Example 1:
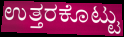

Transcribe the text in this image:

ಉತ್ತರಕೊಟ್ಟು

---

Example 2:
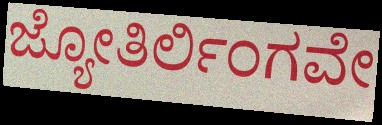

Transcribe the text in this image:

ಜ್ಯೋತಿರ್ಲಿಂಗವೇ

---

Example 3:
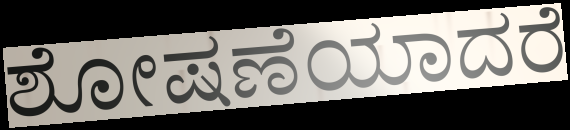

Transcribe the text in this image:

ಶೋಷಣೆಯಾದರೆ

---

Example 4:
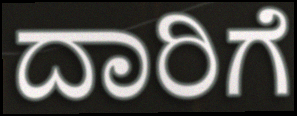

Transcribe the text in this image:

ದಾರಿಗೆ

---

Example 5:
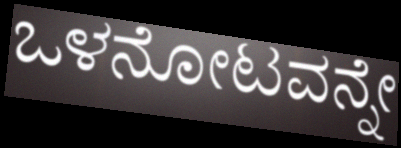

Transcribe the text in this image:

ಒಳನೋಟವನ್ನೇ